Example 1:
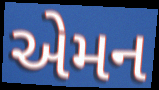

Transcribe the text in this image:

એમન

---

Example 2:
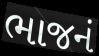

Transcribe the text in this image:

ભાજનં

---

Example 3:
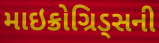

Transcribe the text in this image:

માઇક્રોગ્રિડ્સની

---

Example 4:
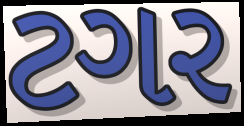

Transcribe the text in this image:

ટગર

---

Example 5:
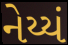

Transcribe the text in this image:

નેય્યં